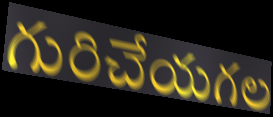
గురిచేయగల